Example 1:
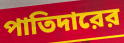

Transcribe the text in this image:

পাতিদারের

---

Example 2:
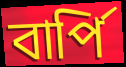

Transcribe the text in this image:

বার্পি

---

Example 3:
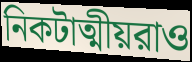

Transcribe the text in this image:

নিকটাত্মীয়রাও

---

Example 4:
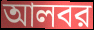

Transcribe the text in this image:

আলবর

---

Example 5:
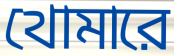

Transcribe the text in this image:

থোমারে